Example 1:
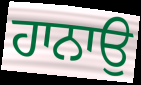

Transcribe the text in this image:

ਹਾਨਾਉ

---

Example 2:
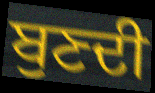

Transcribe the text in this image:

ਬੁਣਦੀ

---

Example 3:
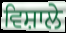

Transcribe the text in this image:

ਵਿਸ਼ਾਲੇ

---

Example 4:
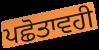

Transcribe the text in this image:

ਪਛੋਤਾਵਹੀ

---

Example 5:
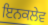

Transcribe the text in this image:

ਇਨਕਲੇਵ